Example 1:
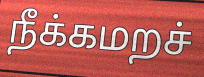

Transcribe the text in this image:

நீக்கமறச்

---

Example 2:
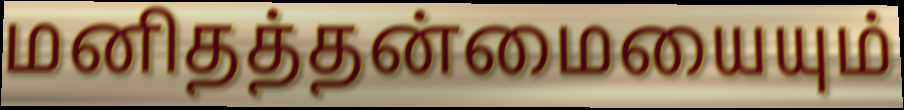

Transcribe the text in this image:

மனிதத்தன்மையையும்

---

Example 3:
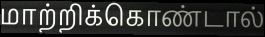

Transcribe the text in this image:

மாற்றிக்கொண்டால்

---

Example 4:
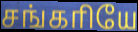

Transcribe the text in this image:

சங்கரியே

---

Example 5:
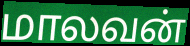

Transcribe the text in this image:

மாலவன்